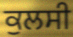
ਕੁਲਸੀ